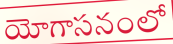
యోగాసనంలో